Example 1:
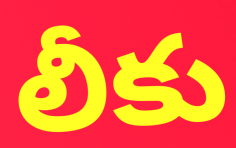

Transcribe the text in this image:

లీకు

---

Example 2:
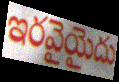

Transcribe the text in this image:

ఇరవైయైదు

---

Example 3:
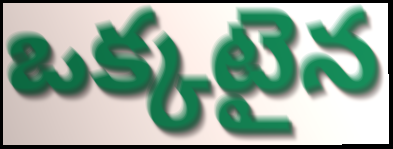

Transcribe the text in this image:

ఒక్కటైన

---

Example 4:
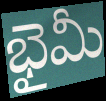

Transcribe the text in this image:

భైమీ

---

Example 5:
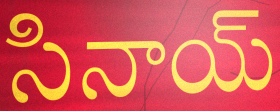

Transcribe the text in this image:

సినాయ్